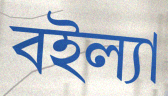
বইল্যা